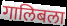
गालिबला